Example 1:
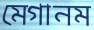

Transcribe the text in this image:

মেগানম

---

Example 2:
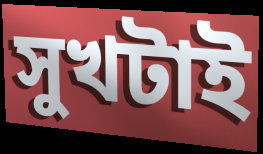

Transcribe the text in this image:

সুখটাই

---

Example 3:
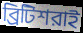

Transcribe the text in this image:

ব্রিটিশরাই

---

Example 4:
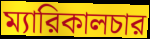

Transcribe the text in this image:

ম্যারিকালচার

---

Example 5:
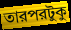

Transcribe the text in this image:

তারপরটুকু